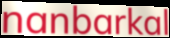
nanbarkal